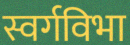
स्वर्गविभा